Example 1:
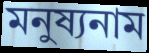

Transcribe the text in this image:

মনুষ্যনাম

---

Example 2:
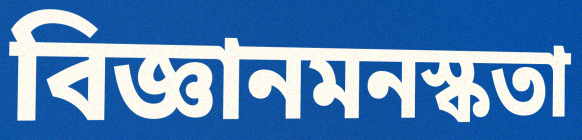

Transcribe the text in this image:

বিজ্ঞানমনস্কতা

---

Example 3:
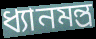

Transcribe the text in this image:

ধ্যানমন্ত্র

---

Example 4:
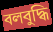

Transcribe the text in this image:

বলবুদ্ধি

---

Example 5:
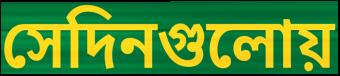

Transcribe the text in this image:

সেদিনগুলোয়